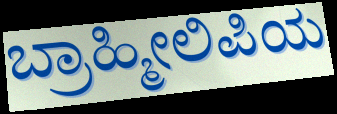
ಬ್ರಾಹ್ಮೀಲಿಪಿಯ